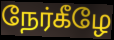
நேர்கீழே